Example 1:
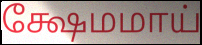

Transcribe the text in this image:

க்ஷேமமாய்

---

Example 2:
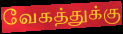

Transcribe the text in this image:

வேகத்துக்கு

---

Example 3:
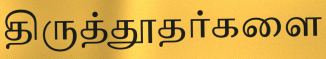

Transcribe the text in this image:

திருத்தூதர்களை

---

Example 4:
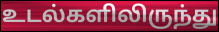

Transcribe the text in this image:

உடல்களிலிருந்து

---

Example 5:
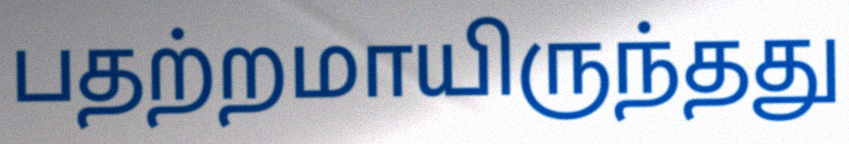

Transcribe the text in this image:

பதற்றமாயிருந்தது